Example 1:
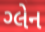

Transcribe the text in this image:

ગ્લેન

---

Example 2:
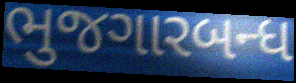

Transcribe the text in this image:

ભુજગારબન્ધ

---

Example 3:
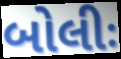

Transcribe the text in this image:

બોલીઃ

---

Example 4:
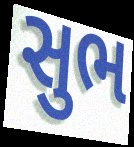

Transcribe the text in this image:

સુભ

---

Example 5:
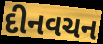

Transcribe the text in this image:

દીનવચન